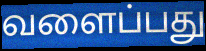
வளைப்பது